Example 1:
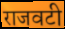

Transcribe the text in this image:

राजवटी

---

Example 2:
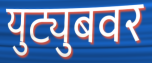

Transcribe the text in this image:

युट्युबवर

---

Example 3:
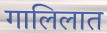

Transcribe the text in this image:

गालिलात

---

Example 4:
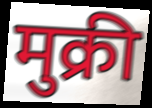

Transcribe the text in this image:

मुक्री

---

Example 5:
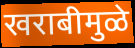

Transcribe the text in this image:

खराबीमुळे